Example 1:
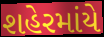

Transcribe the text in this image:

શહેરમાંયે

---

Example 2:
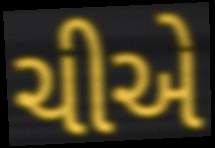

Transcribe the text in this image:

ચીએ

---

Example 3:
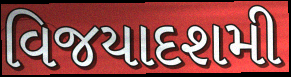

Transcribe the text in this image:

વિજયાદશમી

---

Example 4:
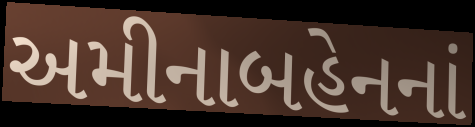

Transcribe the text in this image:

અમીનાબહેનનાં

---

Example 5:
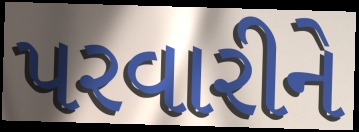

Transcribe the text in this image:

પરવારીને